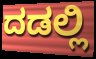
ದಡಲ್ಲಿ